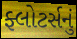
ફ્લોટર્સનું